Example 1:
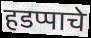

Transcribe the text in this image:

हडप्पाचे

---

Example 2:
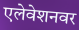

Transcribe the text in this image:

एलेवेशनवर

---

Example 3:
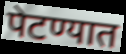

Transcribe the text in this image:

पेटण्यात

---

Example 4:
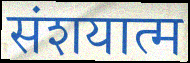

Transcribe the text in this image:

संशयात्म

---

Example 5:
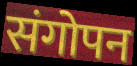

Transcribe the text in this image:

संगोपन